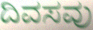
ದಿವಸವು